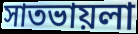
সাতভায়লা